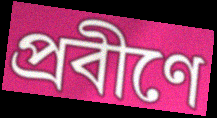
প্রবীণে